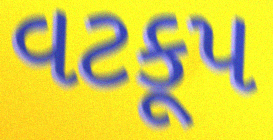
વટકૂપ